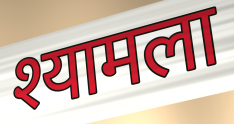
श्यामला